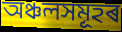
অঞ্চলসমূহৰ